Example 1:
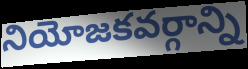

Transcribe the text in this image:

నియోజకవర్గాన్ని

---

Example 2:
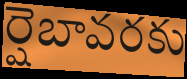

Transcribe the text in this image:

ర్షెబావరకు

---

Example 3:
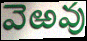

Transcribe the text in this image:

వెఱవు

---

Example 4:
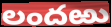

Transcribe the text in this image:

లందఱు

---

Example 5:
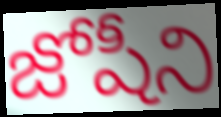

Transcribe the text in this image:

జోషీని